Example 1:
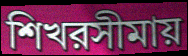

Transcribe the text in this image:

শিখরসীমায়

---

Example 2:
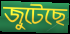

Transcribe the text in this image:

জুটেছে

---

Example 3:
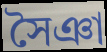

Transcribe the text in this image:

সৈঞা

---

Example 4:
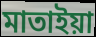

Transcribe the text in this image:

মাতাইয়া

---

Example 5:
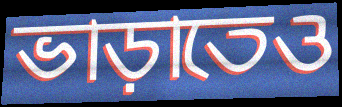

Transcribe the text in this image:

ভাড়াতেও